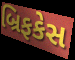
બ્રિફકેસ